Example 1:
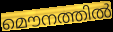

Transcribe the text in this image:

മൌനത്തിൽ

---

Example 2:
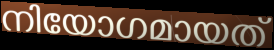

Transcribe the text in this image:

നിയോഗമായത്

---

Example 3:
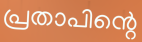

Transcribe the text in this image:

പ്രതാപിന്റെ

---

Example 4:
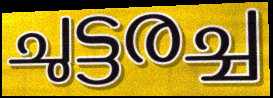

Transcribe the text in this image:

ചുട്ടരച്ച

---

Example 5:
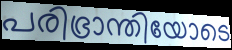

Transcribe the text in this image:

പരിഭ്രാന്തിയോടെ